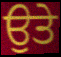
ਉਤੇ